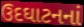
ઉદઘાટનનાં